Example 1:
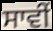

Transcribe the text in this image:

ਸਾਵੀਂ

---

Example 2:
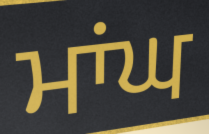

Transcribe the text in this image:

ਮਾਂਘ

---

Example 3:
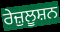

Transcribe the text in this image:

ਰੇਜ਼ੁਲੂਸ਼ਨ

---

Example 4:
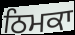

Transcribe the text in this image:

ਠਿਮਕਾ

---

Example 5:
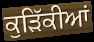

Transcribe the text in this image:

ਕੁੜਿੱਕੀਆਂ